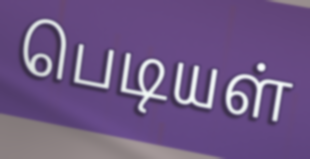
பெடியள்